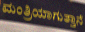
ಮಂತ್ರಿಯಾಗುತ್ತಾನೆ